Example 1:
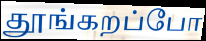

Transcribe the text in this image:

தூங்கறப்போ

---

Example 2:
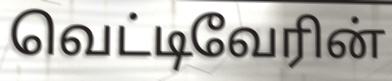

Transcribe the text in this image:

வெட்டிவேரின்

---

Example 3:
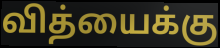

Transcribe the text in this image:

வித்யைக்கு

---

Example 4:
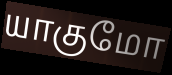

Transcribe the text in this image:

யாகுமோ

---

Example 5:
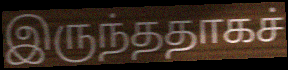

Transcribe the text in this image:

இருந்ததாகச்